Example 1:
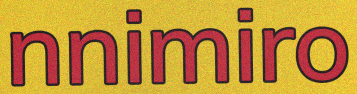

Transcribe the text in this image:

nnimiro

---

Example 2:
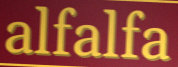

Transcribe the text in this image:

alfalfa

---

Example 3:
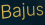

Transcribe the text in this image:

Bajus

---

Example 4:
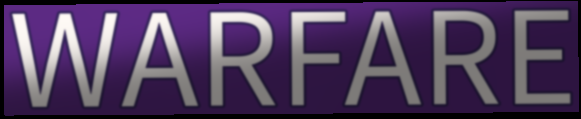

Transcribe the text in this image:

WARFARE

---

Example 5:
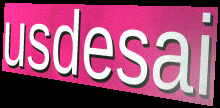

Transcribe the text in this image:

usdesai